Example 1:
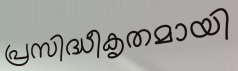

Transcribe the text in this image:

പ്രസിദ്ധീകൃതമായി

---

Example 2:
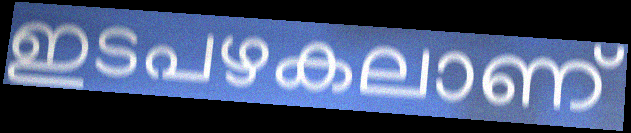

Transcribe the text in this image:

ഇടപഴകലാണ്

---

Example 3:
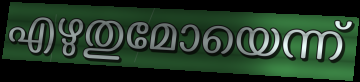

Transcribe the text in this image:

എഴുതുമോയെന്ന്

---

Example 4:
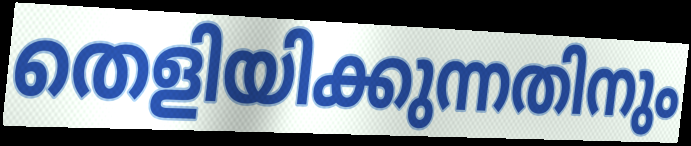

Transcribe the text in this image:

തെളിയിക്കുന്നതിനും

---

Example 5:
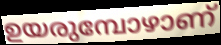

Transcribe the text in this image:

ഉയരുമ്പോഴാണ്